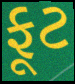
ફૂટ